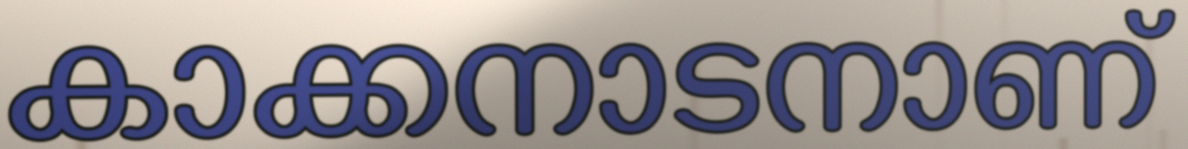
കാക്കനാടനാണ്